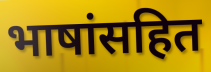
भाषांसहित